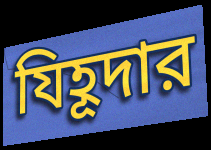
যিহূদার